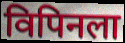
विपिनला